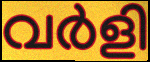
വർളി